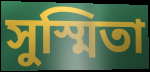
সুস্মিতা